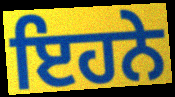
ਇਹਨੇ